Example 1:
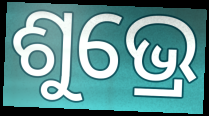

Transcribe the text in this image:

ଶୁଭ୍ରେ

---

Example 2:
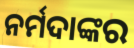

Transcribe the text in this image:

ନର୍ମଦାଙ୍କର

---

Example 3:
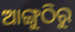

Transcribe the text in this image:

ଆଙ୍ଗୁଠିରୁ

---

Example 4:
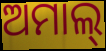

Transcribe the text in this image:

ଅମାଲ୍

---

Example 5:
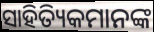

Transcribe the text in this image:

ସାହିତ୍ୟିକମାନଙ୍କ